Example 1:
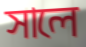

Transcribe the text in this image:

সালে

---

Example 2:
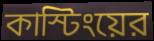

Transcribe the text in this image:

কাস্টিংয়ের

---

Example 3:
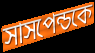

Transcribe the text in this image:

সাসপেন্ডকে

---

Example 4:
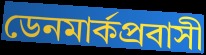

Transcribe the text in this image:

ডেনমার্কপ্রবাসী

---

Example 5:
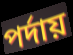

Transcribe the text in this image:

পর্দায়